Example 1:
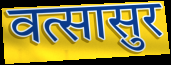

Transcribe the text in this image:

वत्सासुर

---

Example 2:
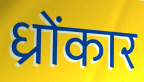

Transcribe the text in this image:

ध्रोंकार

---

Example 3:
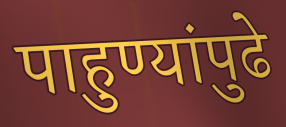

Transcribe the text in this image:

पाहुण्यांपुढे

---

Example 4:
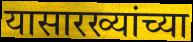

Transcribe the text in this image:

यासारख्यांच्या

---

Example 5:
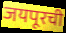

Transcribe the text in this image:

जयपूरची